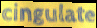
cingulate